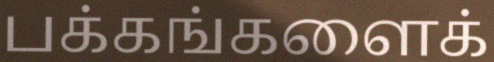
பக்கங்களைக்